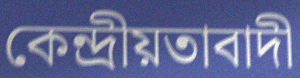
কেন্দ্ৰীয়তাবাদী